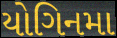
યોગિનમા